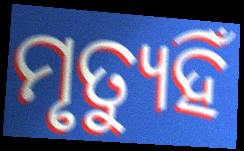
ମୃତ୍ୟୁହିଁ